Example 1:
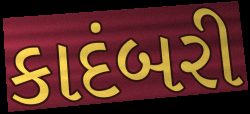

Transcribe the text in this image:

કાદંબરી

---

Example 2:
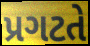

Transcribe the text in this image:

પ્રગટતે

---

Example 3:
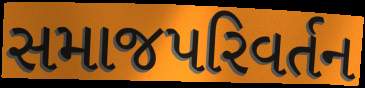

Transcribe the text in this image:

સમાજપરિવર્તન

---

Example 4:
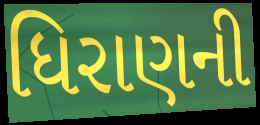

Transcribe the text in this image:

ધિરાણની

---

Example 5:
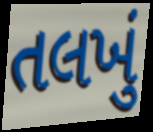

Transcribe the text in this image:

તલખું